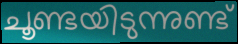
ചൂണ്ടയിടുന്നുണ്ട്